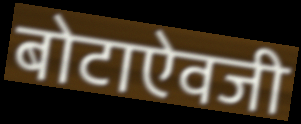
बोटाऐवजी